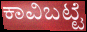
ಕಾವಿಬಟ್ಟೆ